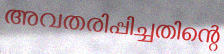
അവതരിപ്പിച്ചതിന്റെ